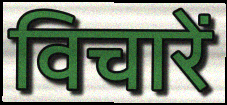
विचारें